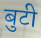
बुटी